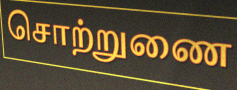
சொற்றுணை